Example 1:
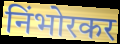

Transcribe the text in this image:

निंभोरकर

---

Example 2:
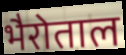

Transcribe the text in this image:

भैरोताल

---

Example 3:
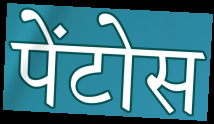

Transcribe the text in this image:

पेंटोस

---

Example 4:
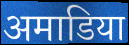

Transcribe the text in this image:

अमाडिया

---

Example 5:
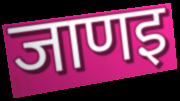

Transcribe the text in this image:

जाणइ